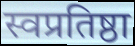
स्वप्रतिष्ठा